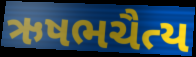
ઋષભચૈત્ય